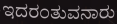
ಇದರಂತುವನಾರು